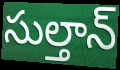
సుల్తాన్